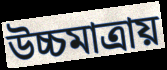
উচ্চমাত্রায়